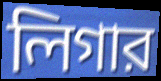
লিগার